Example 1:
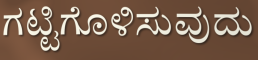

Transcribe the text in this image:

ಗಟ್ಟಿಗೊಳಿಸುವುದು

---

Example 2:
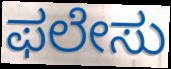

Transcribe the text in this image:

ಫಲೇಸು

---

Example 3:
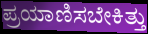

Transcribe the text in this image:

ಪ್ರಯಾಣಿಸಬೇಕಿತ್ತು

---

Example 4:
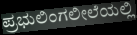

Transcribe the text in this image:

ಪ್ರಭುಲಿಂಗಲೀಲೆಯಲ್ಲಿ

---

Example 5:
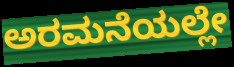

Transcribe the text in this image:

ಅರಮನೆಯಲ್ಲೇ